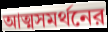
আত্মসমর্থনের